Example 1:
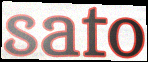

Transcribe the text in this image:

sato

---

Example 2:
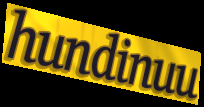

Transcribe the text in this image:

hundinuu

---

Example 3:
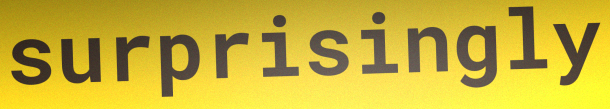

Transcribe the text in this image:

surprisingly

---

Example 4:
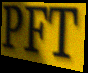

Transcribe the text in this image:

PFT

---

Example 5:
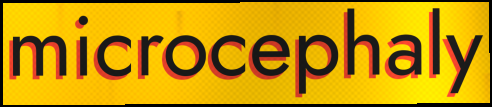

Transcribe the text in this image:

microcephaly